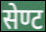
सेण्ट